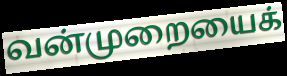
வன்முறையைக்